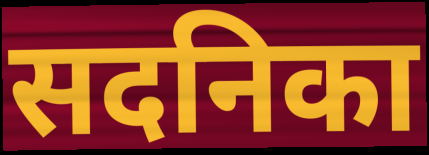
सदनिका